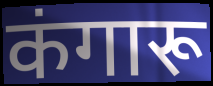
कंगारू